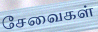
சேவைகள்